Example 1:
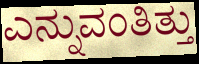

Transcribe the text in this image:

ಎನ್ನುವಂತಿತ್ತು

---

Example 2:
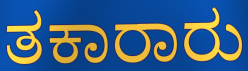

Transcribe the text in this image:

ತಕಾರಾರು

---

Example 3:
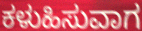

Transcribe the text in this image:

ಕಳುಹಿಸುವಾಗ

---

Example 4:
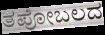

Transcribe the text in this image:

ತಪೋಬಲದ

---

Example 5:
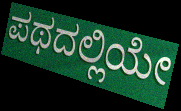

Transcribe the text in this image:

ಪಥದಲ್ಲಿಯೇ